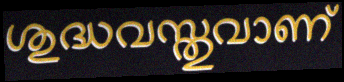
ശുദ്ധവസ്തുവാണ്